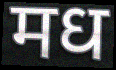
मध